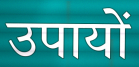
उपायों